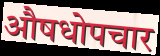
औषधोपचार